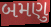
બમણુ